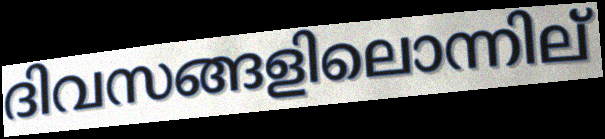
ദിവസങ്ങളിലൊന്നില്